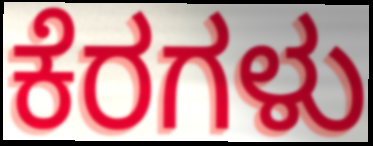
ಕೆರಗಳು